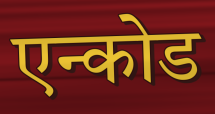
एन्कोड